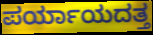
ಪರ್ಯಾಯದತ್ತ